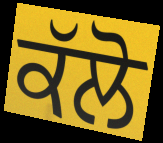
ਕੱਲੋ